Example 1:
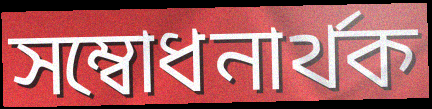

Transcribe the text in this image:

সম্বোধনাৰ্থক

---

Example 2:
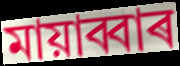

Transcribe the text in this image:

মায়াব্বাৰ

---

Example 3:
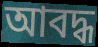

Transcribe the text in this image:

আবদ্ধ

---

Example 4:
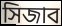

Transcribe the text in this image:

সিজাব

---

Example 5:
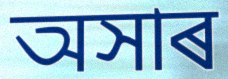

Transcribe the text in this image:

অসাৰ